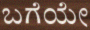
ಬಗೆಯೇ